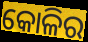
କୋଳିର